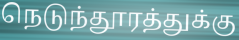
நெடுந்தூரத்துக்கு